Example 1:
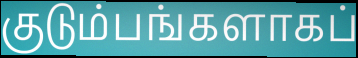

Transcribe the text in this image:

குடும்பங்களாகப்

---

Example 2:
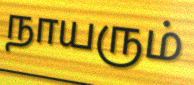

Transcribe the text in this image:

நாயரும்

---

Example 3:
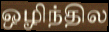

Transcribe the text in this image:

ஒழிந்தில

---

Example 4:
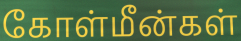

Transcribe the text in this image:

கோள்மீன்கள்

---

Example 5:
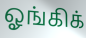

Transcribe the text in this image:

ஓங்கிக்